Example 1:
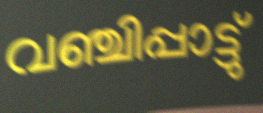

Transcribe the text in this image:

വഞ്ചിപ്പാട്ടു്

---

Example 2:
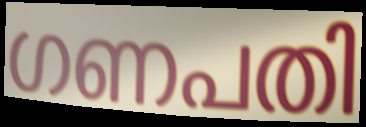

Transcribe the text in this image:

ഗണപതി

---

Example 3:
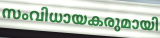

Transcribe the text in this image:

സംവിധായകരുമായി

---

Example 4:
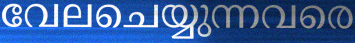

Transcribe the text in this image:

വേലചെയ്യുന്നവരെ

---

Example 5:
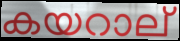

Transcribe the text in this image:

കയറാല്